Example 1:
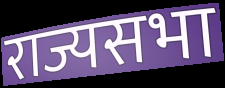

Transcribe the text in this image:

राज्यसभा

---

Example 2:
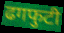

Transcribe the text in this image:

ढगफुटी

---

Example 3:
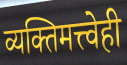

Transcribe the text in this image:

व्यक्तिमत्त्वेही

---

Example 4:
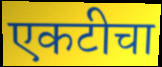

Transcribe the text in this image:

एकटीचा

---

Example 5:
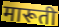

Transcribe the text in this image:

मारूती